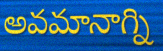
అవమానాగ్ని